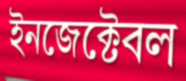
ইনজেক্টেবল